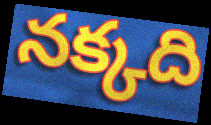
నక్కది